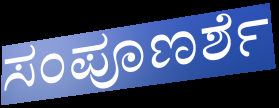
ಸಂಪೂಣರ್ಶೆ